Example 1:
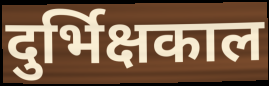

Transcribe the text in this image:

दुर्भिक्षकाल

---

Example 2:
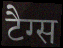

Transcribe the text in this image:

टैग्स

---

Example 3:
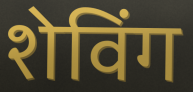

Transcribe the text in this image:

शेविंग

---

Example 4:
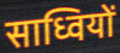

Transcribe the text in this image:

साध्वियों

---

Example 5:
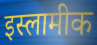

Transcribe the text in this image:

इस्लामीक